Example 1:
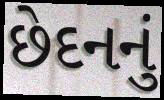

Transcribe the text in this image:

છેદનનું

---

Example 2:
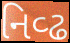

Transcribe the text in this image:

નિવ્ઢ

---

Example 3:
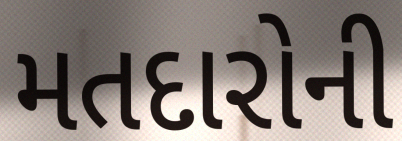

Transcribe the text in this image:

મતદારોની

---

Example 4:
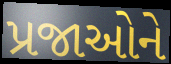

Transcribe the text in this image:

પ્રજાઓને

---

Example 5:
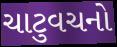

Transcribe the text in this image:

ચાટુવચનો